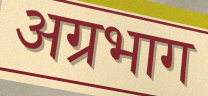
अग्रभाग